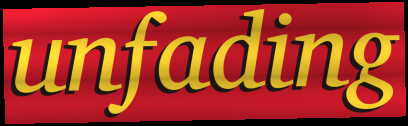
unfading